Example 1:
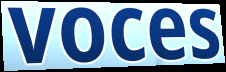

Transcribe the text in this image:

voces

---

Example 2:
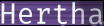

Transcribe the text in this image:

Hertha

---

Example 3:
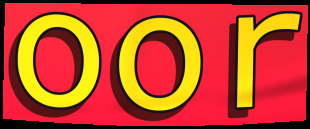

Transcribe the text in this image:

oor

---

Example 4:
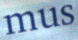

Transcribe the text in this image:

mus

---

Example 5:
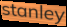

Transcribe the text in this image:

stanley